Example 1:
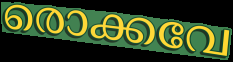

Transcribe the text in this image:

രൊക്കവേ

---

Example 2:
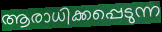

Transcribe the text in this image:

ആരാധിക്കപ്പെടുന്ന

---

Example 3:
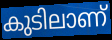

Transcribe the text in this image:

കുടിലാണ്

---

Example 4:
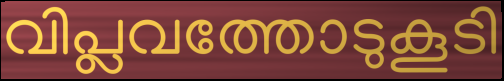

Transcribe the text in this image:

വിപ്ലവത്തോടുകൂടി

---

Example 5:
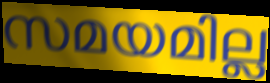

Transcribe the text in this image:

സമയമില്ല